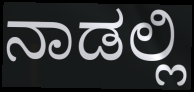
ನಾಡಲ್ಲಿ